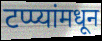
टप्प्यांमधून